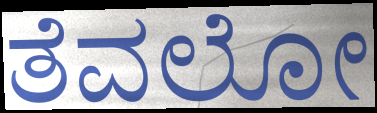
ತೆವಲೋ